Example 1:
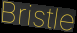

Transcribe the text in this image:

Bristle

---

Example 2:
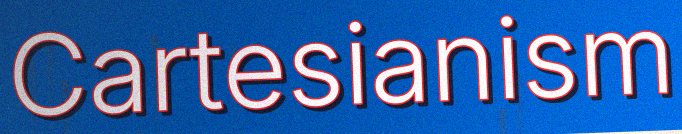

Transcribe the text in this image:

Cartesianism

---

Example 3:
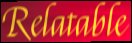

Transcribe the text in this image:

Relatable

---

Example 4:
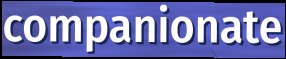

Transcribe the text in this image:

companionate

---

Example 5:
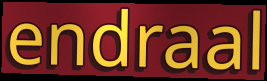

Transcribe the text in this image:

endraal